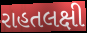
રાહતલક્ષી